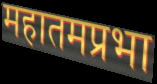
महातमप्रभा